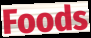
Foods